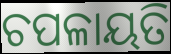
ଚପଳାୟତି